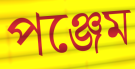
পঞ্জেম